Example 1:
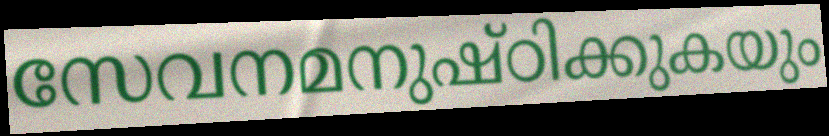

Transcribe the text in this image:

സേവനമനുഷ്ഠിക്കുകയും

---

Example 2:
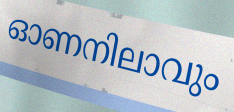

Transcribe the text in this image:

ഓണനിലാവും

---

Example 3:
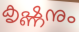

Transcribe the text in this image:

കൃഷ്ണനും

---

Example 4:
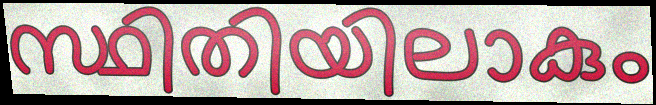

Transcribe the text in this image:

സ്ഥിതിയിലാകും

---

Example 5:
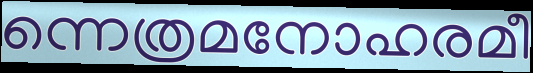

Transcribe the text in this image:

ന്നെത്രമനോഹരമീ